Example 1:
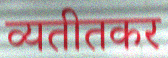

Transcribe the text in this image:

व्यतीतकर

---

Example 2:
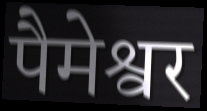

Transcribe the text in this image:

पैमेश्वर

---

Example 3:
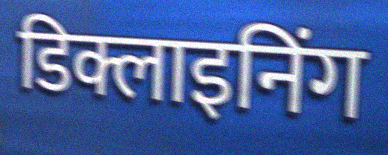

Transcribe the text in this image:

डिक्लाइनिंग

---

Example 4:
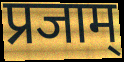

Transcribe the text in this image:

प्रजाम्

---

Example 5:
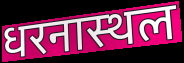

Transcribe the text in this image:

धरनास्थल